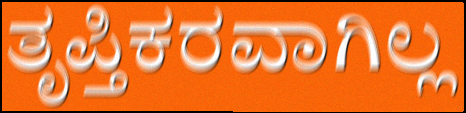
ತೃಪ್ತಿಕರವಾಗಿಲ್ಲ